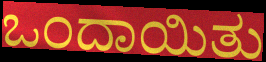
ಒಂದಾಯಿತು